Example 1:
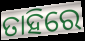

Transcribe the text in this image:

ତାହିରେ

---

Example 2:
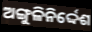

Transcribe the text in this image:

ଅଙ୍ଗୁଳିନିର୍ଦ୍ଦେଶ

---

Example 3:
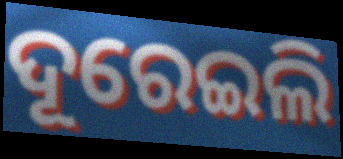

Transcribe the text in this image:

ଦୂରେଇଲି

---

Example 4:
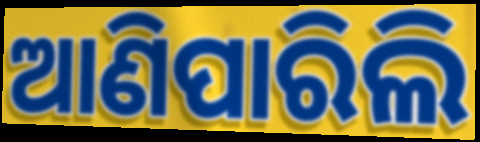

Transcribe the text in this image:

ଆଣିପାରିଲି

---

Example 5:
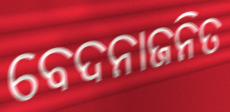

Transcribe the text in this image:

ବେଦନାଜନିତ